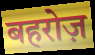
बहरोज़